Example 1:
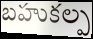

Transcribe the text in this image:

బహుకల్ప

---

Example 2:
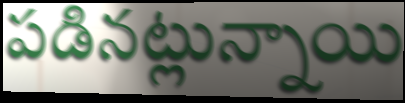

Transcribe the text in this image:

పడినట్లున్నాయి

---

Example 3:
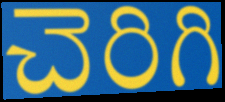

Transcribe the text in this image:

చెరిగి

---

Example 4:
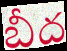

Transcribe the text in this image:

బీద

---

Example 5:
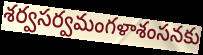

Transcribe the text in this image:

శర్వసర్వమంగళాశంసనకు